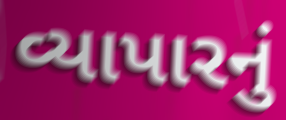
વ્યાપારનું